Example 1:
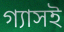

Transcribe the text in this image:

গ্যাসই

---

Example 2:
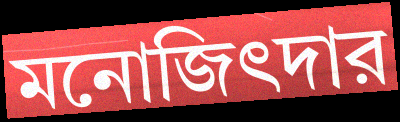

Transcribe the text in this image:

মনোজিৎদার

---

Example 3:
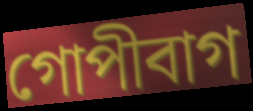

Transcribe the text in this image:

গোপীবাগ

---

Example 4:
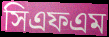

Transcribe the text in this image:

সিএফএম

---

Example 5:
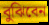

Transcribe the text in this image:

বুঝিবেন